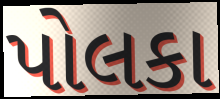
પોલકા